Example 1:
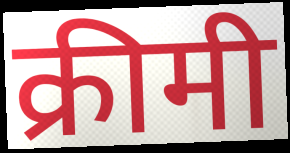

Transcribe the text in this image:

क्रीमी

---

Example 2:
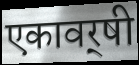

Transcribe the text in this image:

एकावर्षी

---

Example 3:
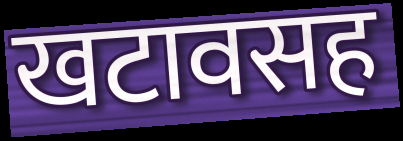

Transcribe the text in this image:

खटावसह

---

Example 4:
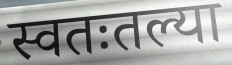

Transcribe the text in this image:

स्वतःतल्या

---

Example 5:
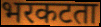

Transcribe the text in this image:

भरकटता